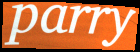
parry